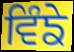
ਵਿੰਙੇ